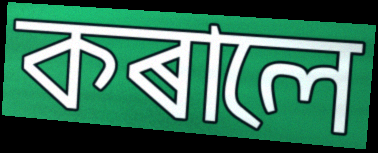
কৰালে